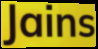
Jains